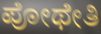
ಪೋಥೇತಿ